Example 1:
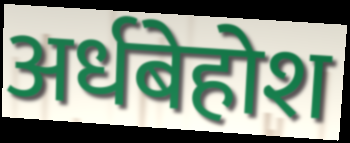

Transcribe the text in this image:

अर्धबेहोश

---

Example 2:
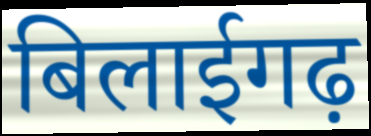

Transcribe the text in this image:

बिलाईगढ़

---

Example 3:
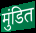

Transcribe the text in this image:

मुंडित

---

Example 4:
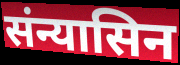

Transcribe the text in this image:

संन्यासिन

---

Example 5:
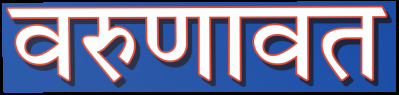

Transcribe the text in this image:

वरुणावत